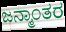
ಜನ್ಮಾಂತರ